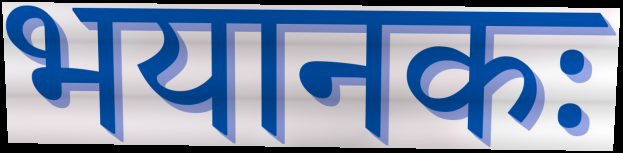
भयानकः